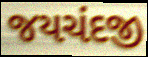
જયચંદજી